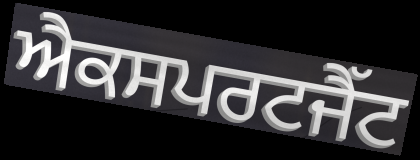
ਐਕਸਪਰਟਜੈੱਟ